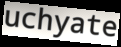
uchyate